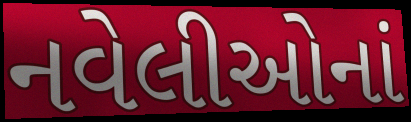
નવેલીઓનાં